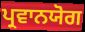
ਪ੍ਰਵਾਨਯੋਗ